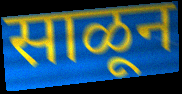
साळून